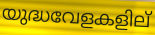
യുദ്ധവേളകളില്